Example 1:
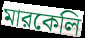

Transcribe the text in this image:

মারকেলি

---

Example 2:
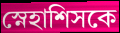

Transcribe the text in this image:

স্নেহাশিসকে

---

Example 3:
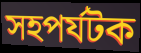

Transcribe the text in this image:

সহপর্যটক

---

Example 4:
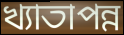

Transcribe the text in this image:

খ্যাতাপন্ন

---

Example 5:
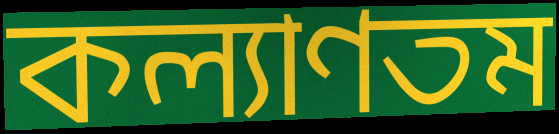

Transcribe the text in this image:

কল্যাণতম